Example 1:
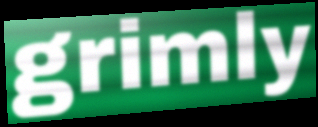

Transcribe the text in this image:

grimly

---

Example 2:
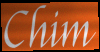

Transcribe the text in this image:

Chim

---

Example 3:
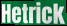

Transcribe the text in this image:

Hetrick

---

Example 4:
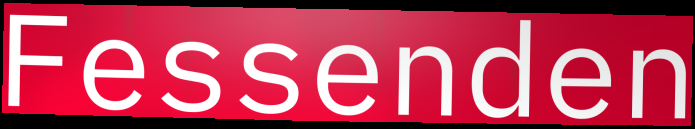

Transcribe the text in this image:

Fessenden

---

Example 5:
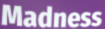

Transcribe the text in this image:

Madness